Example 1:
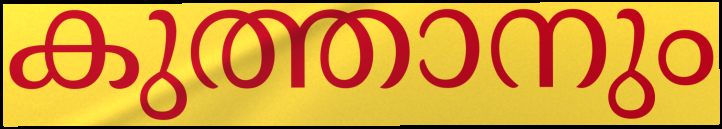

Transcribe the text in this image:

കുത്താനും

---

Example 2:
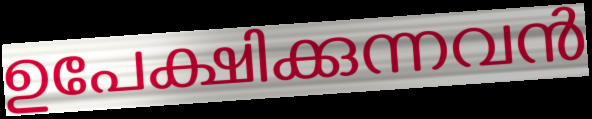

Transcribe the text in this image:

ഉപേക്ഷിക്കുന്നവൻ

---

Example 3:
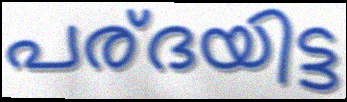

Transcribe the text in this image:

പര്ദയിട്ട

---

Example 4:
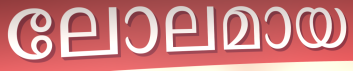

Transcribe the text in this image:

ലോലമായ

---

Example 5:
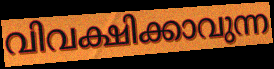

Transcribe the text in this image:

വിവക്ഷിക്കാവുന്ന